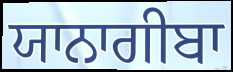
ਯਾਨਾਗੀਬਾ